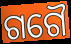
ଗଗୈ